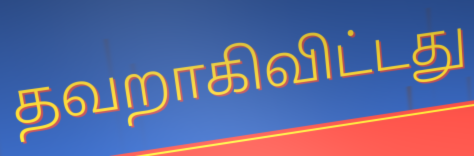
தவறாகிவிட்டது